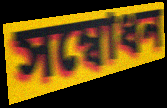
সম্বোধন